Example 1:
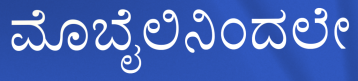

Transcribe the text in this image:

ಮೊಬೈಲಿನಿಂದಲೇ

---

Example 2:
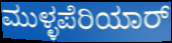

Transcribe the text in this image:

ಮುಳ್ಳಪೆರಿಯಾರ್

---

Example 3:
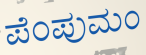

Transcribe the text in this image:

ಪೆಂಪುಮಂ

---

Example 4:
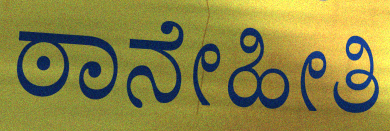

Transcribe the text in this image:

ಠಾನೇಹೀತಿ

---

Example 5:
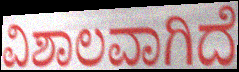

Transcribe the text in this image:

ವಿಶಾಲವಾಗಿದೆ